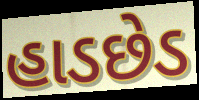
હાડછેડ